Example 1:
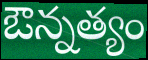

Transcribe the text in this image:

ఔన్నత్యం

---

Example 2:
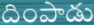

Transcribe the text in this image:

దింపాడు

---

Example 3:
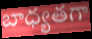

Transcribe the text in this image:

బాధ్యతగా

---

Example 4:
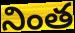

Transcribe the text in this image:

నింత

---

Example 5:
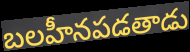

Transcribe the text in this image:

బలహీనపడతాడు